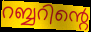
റബ്ബറിന്റെ